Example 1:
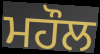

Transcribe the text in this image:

ਮਹੌਲ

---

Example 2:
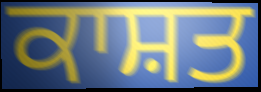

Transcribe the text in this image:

ਕਾਸ਼ਤ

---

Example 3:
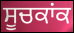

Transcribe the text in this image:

ਸੂਚਕਾਂਕ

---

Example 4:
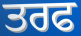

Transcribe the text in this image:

ਤਰਫ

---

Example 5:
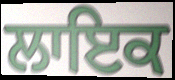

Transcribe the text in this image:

ਲਾਇਕ